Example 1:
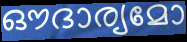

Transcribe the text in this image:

ഔദാര്യമോ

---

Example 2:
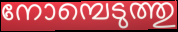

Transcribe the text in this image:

നോമ്പെടുത്തു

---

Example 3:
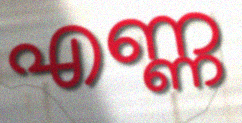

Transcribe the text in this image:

എണ്ണ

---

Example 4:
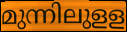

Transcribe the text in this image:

മുന്നിലുളള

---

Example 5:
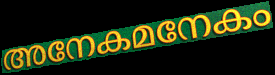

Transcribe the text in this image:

അനേകമനേകം